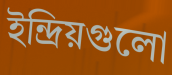
ইন্দ্রিয়গুলো